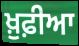
ਖ਼ੁਫ਼ੀਆ